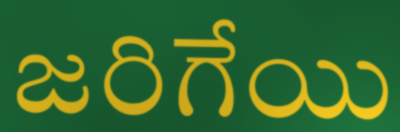
జరిగేయి